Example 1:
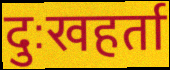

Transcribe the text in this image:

दुःखहर्ता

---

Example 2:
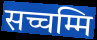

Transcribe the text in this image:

सच्चम्मि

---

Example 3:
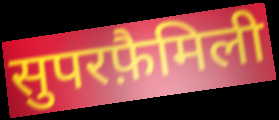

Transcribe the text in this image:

सुपरफ़ैमिली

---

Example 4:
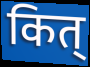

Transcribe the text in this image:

कित्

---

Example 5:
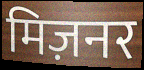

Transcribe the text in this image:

मिज़नर